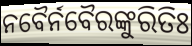
ନବୈର୍ନବୈରଙ୍କୁରିତିଃ